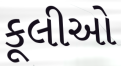
કૂલીઓ